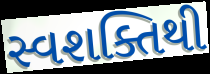
સ્વશક્તિથી